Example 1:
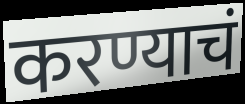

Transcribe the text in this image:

करण्याचं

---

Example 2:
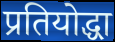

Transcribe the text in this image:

प्रतियोद्धा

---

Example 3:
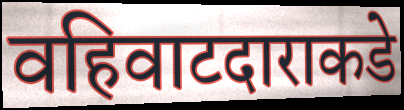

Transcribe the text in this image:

वहिवाटदाराकडे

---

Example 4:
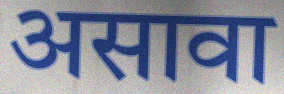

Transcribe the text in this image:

असावा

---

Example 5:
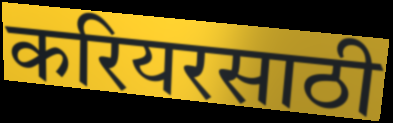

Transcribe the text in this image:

करियरसाठी